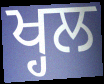
ਖ੍ਹਲ